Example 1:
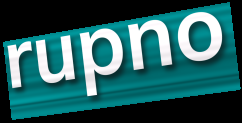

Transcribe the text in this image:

rupno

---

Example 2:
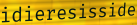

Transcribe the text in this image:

idieresisside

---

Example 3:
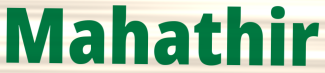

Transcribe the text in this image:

Mahathir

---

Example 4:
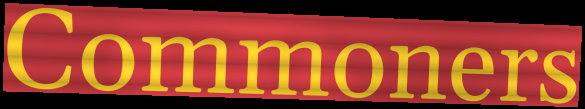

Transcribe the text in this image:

Commoners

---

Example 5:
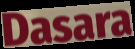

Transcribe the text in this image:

Dasara